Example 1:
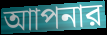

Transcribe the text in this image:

আাপনার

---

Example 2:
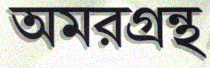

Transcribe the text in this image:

অমরগ্রন্থ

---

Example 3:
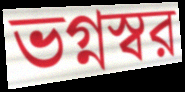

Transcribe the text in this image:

ভগ্নস্বর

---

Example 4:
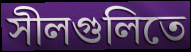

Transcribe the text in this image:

সীলগুলিতে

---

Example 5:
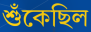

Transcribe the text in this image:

শুঁকেছিল